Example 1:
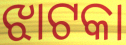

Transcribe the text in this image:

ଝାଟକା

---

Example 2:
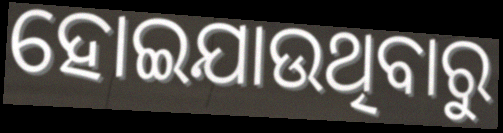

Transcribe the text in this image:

ହୋଇଯାଉଥିବାରୁ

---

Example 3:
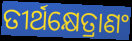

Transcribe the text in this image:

ତୀର୍ଥକ୍ଷେତ୍ରାଣଂ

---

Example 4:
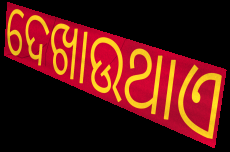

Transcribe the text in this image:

ଦେଖାଉଥାଏ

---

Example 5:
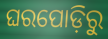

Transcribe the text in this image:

ଘରପୋଡ଼ିରୁ